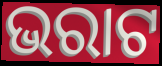
ଭରାଟ